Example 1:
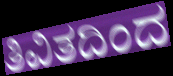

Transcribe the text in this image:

ತಿವಿತದಿಂದ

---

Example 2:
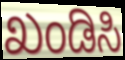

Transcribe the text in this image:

ಖಂಡಿಸಿ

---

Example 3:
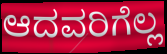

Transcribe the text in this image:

ಆದವರಿಗೆಲ್ಲ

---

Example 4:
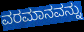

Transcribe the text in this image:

ವರಮಾನವನ್ನು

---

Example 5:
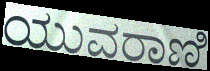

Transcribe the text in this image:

ಯುವರಾಣಿ